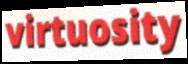
virtuosity